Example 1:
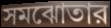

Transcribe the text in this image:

সমঝোতার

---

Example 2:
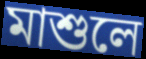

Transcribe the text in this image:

মাশুলে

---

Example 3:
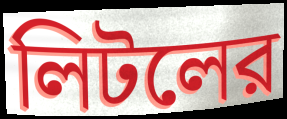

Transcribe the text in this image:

লিটলের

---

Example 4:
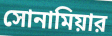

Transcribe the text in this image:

সোনামিয়ার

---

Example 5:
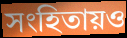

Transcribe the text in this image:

সংহিতায়ও